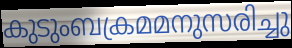
കുടുംബക്രമമനുസരിച്ചു